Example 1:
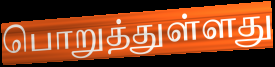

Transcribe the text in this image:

பொறுத்துள்ளது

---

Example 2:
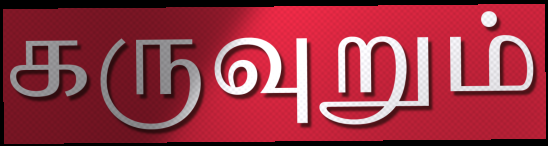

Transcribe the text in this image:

கருவுறும்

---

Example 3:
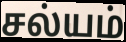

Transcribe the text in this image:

சல்யம்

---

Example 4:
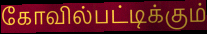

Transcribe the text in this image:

கோவில்பட்டிக்கும்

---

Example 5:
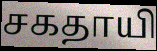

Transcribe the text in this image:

சகதாயி